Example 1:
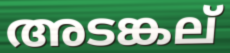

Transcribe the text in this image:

അടങ്കല്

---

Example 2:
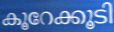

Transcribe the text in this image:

കൂറേക്കൂടി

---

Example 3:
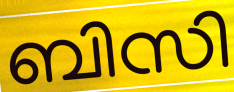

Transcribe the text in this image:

ബിസി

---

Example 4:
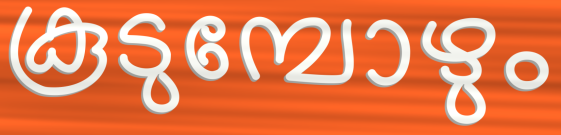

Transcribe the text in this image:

കൂടുമ്പോഴും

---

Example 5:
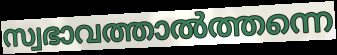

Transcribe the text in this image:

സ്വഭാവത്താൽത്തന്നെ